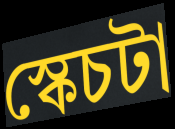
স্কেচটা